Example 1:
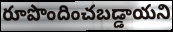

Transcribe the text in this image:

రూపొందించబడ్డాయని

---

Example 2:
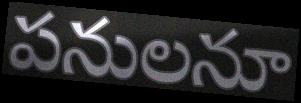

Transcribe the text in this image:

పనులనూ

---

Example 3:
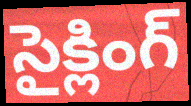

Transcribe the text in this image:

సైక్లింగ్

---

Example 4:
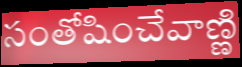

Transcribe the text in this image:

సంతోషించేవాణ్ణి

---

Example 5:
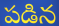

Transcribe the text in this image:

పడిన